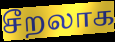
சீறலாக